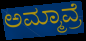
ಅಮ್ಮಾವ್ರೆ